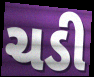
ચડી